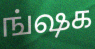
ங்ஷக